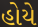
હોયે